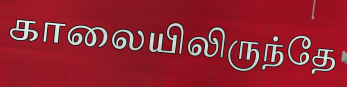
காலையிலிருந்தே